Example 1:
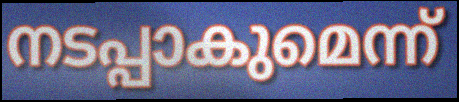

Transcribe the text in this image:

നടപ്പാകുമെന്ന്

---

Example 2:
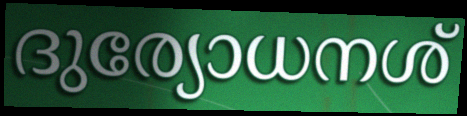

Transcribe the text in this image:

ദുര്യോധനശ്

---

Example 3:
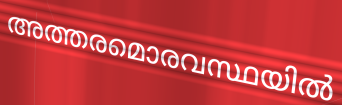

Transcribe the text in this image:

അത്തരമൊരവസ്ഥയിൽ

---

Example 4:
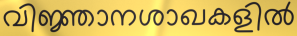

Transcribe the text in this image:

വിജ്ഞാനശാഖകളിൽ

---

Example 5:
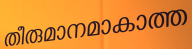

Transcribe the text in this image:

തീരുമാനമാകാത്ത